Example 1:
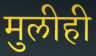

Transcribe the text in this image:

मुलीही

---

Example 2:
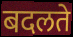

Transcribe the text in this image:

बदलते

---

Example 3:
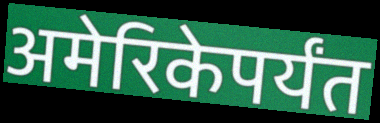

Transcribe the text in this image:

अमेरिकेपर्यंत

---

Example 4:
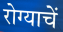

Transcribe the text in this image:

रोग्याचें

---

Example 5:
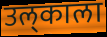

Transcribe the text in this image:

उल्काला